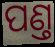
ପଣ୍ତ